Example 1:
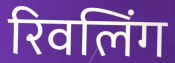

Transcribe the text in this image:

रिवलिंग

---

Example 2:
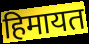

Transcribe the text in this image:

हिमायत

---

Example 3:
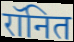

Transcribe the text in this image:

रॉनित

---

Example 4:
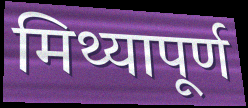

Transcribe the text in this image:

मिथ्यापूर्ण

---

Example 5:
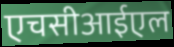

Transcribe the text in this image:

एचसीआईएल